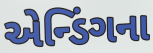
એન્ડિંગના